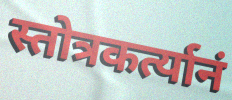
स्तोत्रकर्त्यानं